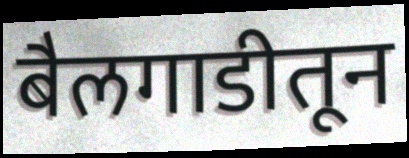
बैलगाडीतून